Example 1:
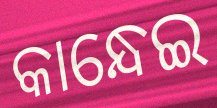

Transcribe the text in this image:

କାନ୍ଧେଇ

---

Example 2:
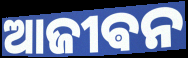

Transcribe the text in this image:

ଆଜୀଵନ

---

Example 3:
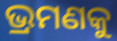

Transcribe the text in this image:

ଭ୍ରମଣକୁ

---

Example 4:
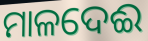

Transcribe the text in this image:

ମାଳଦେଈ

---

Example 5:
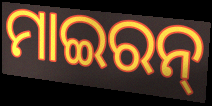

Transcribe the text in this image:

ମାଇରନ୍